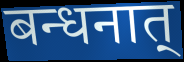
बन्धनात्